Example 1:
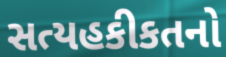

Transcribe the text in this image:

સત્યહકીકતનો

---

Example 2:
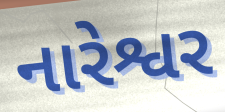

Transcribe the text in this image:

નારેશ્વર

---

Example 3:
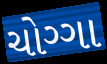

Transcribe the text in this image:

ચોગ્ગા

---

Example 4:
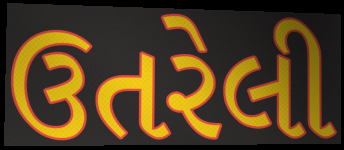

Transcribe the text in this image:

ઉતરેલી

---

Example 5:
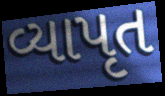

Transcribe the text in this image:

વ્યાપૃત